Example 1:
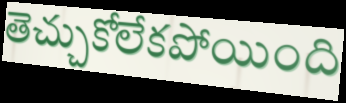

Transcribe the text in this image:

తెచ్చుకోలేకపోయింది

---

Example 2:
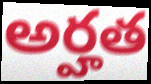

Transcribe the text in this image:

అర్హత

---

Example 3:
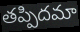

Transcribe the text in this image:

తప్పిదమా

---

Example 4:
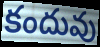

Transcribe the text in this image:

కందువు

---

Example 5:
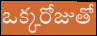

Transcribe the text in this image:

ఒక్కరోజుతో